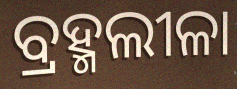
ବ୍ରହ୍ମଲୀଳା